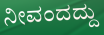
ನೀವಂದದ್ದು